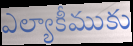
ఎల్యాకీముకు